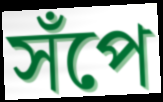
সঁপে